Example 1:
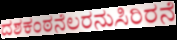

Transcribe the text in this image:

ದಶಕಂಠನೆಲರನುಸಿರಿರನೆ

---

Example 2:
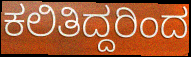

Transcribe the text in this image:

ಕಲಿತಿದ್ದರಿಂದ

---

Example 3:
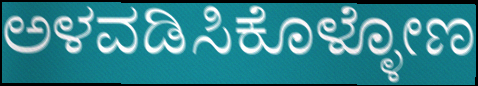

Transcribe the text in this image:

ಅಳವಡಿಸಿಕೊಳ್ಳೋಣ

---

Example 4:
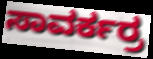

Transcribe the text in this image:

ಸಾವರ್ಕರ್ರ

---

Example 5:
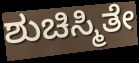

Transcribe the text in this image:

ಶುಚಿಸ್ಮಿತೇ